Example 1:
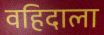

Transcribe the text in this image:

वहिदाला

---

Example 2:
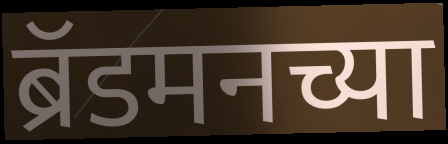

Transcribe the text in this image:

ब्रॅडमनच्या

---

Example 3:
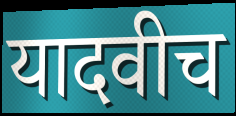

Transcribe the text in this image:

यादवीच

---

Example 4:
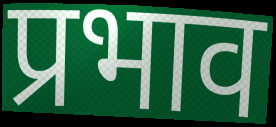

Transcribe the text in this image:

प्रभाव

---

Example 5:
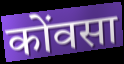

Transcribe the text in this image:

कोंवसा